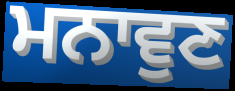
ਮਨਾਵੁਣ